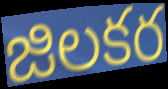
జిలకర